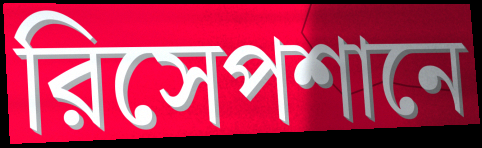
রিসেপশানে